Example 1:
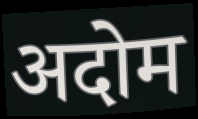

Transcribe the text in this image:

अदोम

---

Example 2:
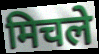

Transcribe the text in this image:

मिचले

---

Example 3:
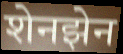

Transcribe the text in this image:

शेनझेन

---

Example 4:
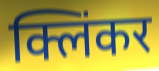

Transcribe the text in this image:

क्लिंकर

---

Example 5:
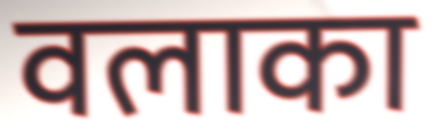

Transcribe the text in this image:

वलाका